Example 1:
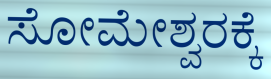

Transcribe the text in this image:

ಸೋಮೇಶ್ವರಕ್ಕೆ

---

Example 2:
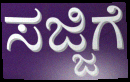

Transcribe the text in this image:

ಸಜ್ಜಿಗೆ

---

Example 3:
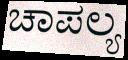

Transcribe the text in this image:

ಚಾಪಲ್ಯ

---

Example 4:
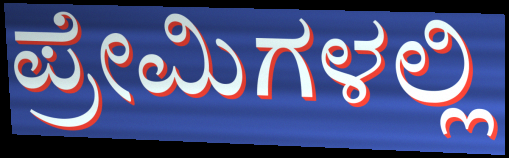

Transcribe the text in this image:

ಪ್ರೇಮಿಗಳಲ್ಲಿ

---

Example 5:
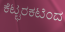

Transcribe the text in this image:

ಕೆಟ್ಟರಕಟೆಂದ